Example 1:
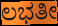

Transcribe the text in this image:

ಲಭತೀ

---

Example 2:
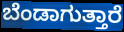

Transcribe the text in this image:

ಬೆಂಡಾಗುತ್ತಾರೆ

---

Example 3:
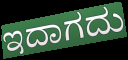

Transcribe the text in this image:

ಇದಾಗದು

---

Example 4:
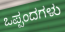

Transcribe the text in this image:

ಒಪ್ಪಂದಗಳು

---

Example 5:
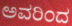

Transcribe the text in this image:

ಅವರಿಂದ